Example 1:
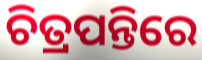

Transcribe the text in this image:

ଚିତ୍ରପନ୍ତିରେ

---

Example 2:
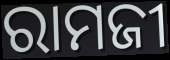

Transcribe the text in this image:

ରାମଜୀ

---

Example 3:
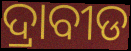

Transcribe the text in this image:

ଦ୍ରାବୀଡ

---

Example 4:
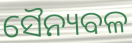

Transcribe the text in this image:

ସୈନ୍ୟବଳ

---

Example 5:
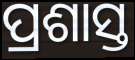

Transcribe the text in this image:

ପ୍ରଶାସ୍ତ